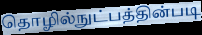
தொழில்நுட்பத்தின்படி